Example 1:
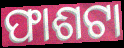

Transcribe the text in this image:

ଫାଶଟା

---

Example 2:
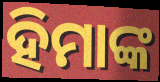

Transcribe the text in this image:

ହିମାଙ୍କ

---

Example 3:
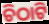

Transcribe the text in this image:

ଚିଠାଟି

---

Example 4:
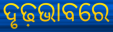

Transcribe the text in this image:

ଦୃଢ଼ଭାବରେ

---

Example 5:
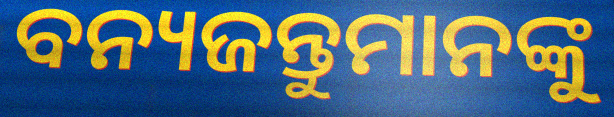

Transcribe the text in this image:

ବନ୍ୟଜନ୍ତୁମାନଙ୍କୁ